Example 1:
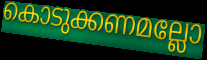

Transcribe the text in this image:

കൊടുക്കണമല്ലോ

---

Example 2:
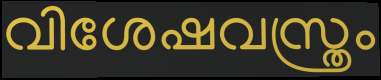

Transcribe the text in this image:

വിശേഷവസ്ത്രം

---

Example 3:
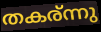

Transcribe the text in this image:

തകര്ന്നു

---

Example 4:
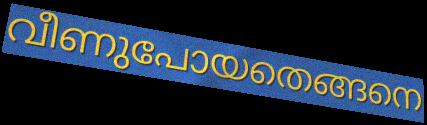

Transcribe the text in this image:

വീണുപോയതെങ്ങനെ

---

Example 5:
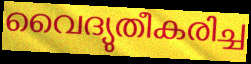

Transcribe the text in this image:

വൈദ്യുതീകരിച്ച